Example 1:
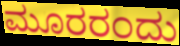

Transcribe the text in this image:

ಮೂರರಂದು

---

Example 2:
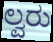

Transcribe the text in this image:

ಲ್ವರು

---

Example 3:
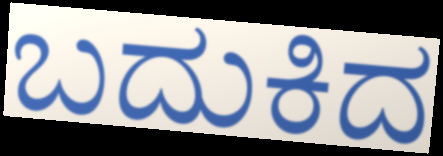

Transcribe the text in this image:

ಬದುಕಿದ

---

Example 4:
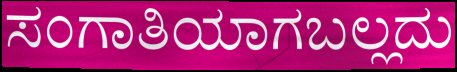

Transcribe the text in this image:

ಸಂಗಾತಿಯಾಗಬಲ್ಲದು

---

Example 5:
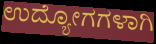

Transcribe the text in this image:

ಉದ್ಯೋಗಗಳಾಗಿ